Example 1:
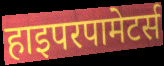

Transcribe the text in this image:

हाइपरपामेटर्स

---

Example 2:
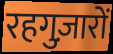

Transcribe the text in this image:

रहगुज़ारों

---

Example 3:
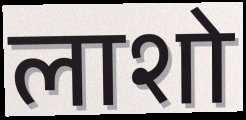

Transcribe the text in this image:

लाशो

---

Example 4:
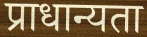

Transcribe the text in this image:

प्राधान्यता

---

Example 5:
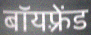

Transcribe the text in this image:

बॉयफ़्रेंड